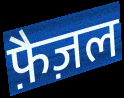
फ़ैज़ल